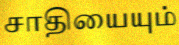
சாதியையும்